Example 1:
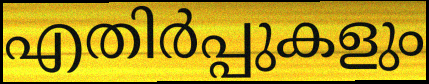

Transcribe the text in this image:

എതിർപ്പുകളും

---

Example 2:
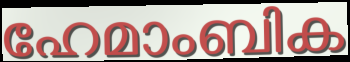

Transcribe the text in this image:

ഹേമാംബിക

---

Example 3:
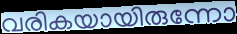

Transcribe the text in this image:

വരികയായിരുന്നോ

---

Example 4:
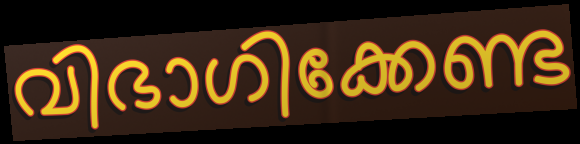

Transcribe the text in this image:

വിഭാഗിക്കേണ്ട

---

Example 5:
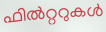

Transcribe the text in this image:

ഫിൽറ്ററുകൾ